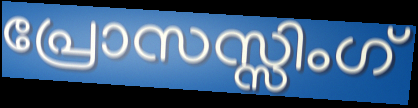
പ്രോസസ്സിംഗ്